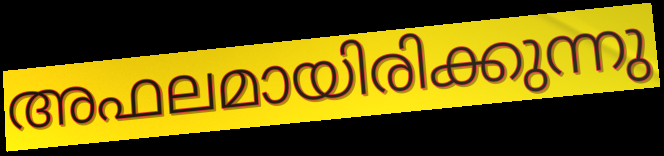
അഫലമായിരിക്കുന്നു